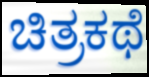
ಚಿತ್ರಕಥೆ